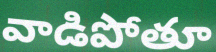
వాడిపోతూ